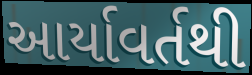
આર્યાવર્તથી